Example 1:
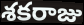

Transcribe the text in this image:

శకరాజు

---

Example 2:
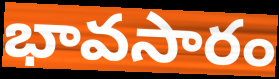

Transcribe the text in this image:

భావసారం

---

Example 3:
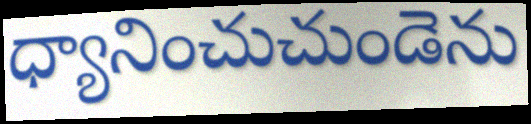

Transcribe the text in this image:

ధ్యానించుచుండెను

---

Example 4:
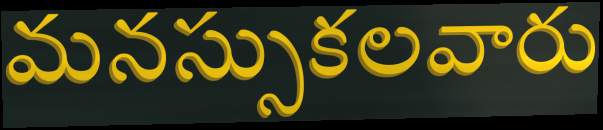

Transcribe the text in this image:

మనస్సుకలవారు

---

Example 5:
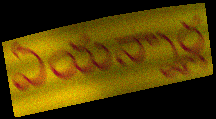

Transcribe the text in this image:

ఏయన్నార్ల